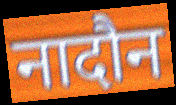
नादौन